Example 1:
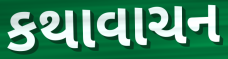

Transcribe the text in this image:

કથાવાચન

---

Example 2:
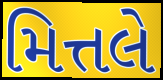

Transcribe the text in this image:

મિત્તલે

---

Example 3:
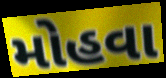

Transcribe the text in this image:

મોહવા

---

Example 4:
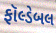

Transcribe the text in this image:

ફૉલ્ડેબલ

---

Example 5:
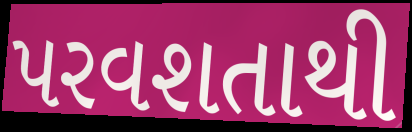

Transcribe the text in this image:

પરવશતાથી